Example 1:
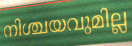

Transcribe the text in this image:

നിശ്ചയവുമില്ല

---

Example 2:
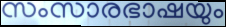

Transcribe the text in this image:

സംസാരഭാഷയും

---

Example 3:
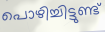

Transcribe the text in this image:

പൊഴിച്ചിട്ടുണ്ട്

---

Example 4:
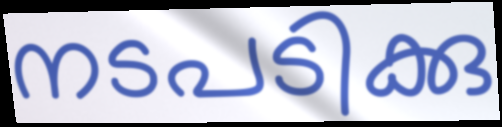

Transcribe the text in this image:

നടപടിക്കു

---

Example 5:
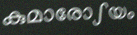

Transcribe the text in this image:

കുമാരോഽയം